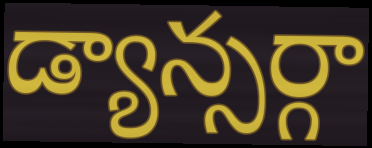
డ్యాన్సర్గా